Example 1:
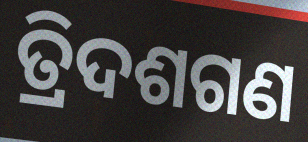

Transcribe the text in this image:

ତ୍ରିଦଶଗଣ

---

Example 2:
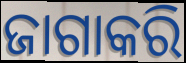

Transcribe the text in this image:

ଜାଗାକରି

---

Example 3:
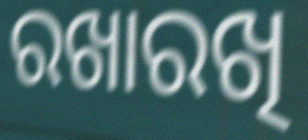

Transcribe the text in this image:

ରଖାରଖି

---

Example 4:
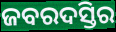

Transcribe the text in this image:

ଜବରଦସ୍ତିର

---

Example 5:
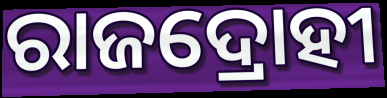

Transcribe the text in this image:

ରାଜଦ୍ରୋହୀ